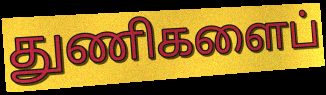
துணிகளைப்